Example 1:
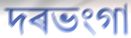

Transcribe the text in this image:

দৰভংগা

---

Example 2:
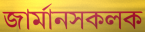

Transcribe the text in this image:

জাৰ্মানসকলক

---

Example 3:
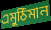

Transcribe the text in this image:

এমুঠিমান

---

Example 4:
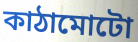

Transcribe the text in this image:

কাঠামোটো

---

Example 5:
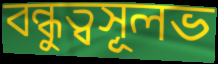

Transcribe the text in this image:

বন্ধুত্বসূলভ